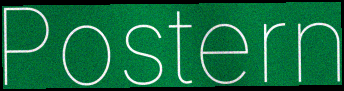
Postern